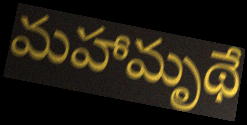
మహామృథే